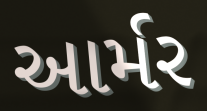
આર્મર